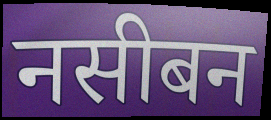
नसीबन